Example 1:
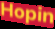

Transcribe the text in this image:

Hopin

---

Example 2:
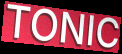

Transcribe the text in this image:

TONIC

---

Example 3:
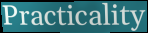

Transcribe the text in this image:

Practicality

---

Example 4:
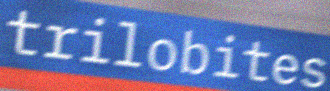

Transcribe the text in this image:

trilobites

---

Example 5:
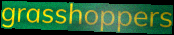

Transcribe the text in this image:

grasshoppers